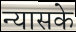
न्यासके